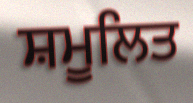
ਸ਼ਮੂਲਿਤ